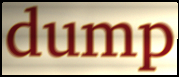
dump